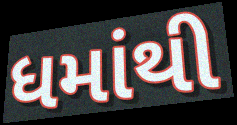
ધમાંથી